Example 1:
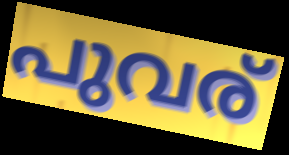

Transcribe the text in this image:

പുവര്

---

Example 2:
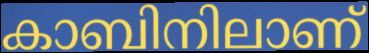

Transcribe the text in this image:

കാബിനിലാണ്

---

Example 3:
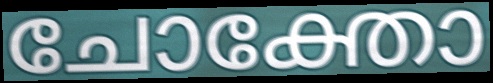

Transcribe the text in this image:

ചോക്തോ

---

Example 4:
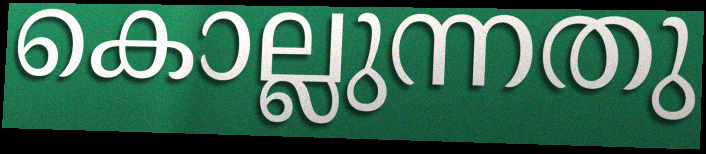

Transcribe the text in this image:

കൊല്ലുന്നതു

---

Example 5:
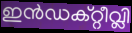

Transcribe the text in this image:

ഇൻഡക്റ്റീവ്ലി